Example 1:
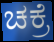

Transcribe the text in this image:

ಚಕ್ರೆ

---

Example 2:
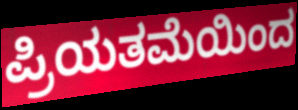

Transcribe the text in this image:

ಪ್ರಿಯತಮೆಯಿಂದ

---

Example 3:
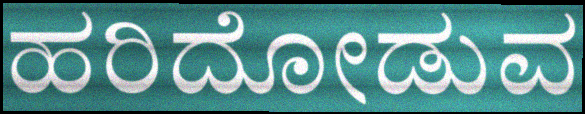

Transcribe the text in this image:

ಹರಿದೋಡುವ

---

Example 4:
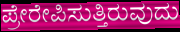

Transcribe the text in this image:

ಪ್ರೇರೇಪಿಸುತ್ತಿರುವುದು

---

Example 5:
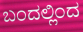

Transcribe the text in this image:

ಬಂದಲ್ಲಿಂದ